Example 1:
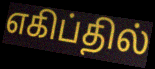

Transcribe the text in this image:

எகிப்தில்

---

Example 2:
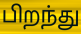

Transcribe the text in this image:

பிறந்து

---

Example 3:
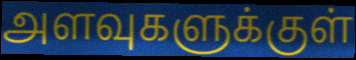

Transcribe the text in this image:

அளவுகளுக்குள்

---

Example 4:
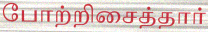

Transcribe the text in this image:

போற்றிசைத்தார்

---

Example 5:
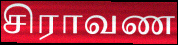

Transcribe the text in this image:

சிராவண